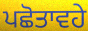
ਪਛੋਤਾਵਹੇ